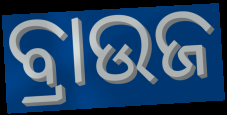
ବ୍ରାଉଜ